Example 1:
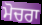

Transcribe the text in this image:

ਮੋਚਰਾ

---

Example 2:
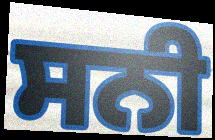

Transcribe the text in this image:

ਸਨੀ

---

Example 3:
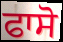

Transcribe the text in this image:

ਫਾਸੋ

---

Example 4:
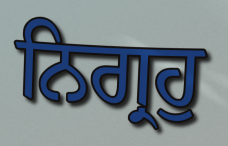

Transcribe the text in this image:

ਨਿਗ੍ਰਹੁ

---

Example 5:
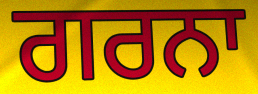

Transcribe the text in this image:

ਗਰਨਾ